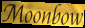
Moonbow